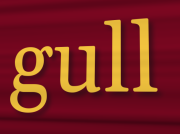
gull